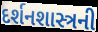
દર્શનશાસ્ત્રની